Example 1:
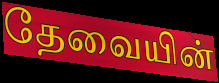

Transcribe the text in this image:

தேவையின்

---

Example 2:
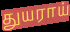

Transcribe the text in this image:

துயராய்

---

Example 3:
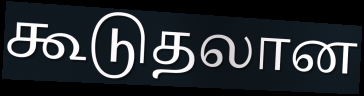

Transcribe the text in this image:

கூடுதலான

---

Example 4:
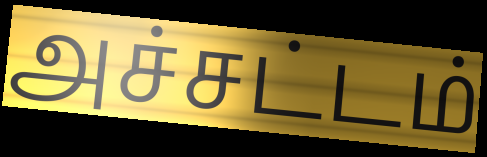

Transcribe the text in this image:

அச்சட்டம்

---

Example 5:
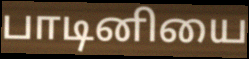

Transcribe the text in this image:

பாடினியை